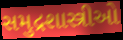
સમુદ્રશાસ્ત્રીઓ